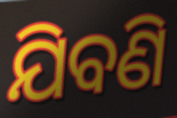
ଯିବଣି